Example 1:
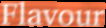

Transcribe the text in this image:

Flavour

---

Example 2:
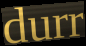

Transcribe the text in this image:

durr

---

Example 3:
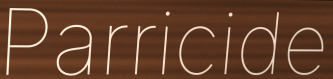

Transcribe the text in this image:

Parricide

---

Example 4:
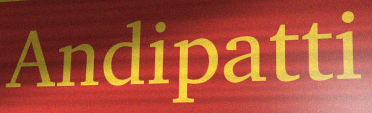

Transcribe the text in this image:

Andipatti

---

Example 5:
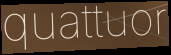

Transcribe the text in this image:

quattuor